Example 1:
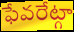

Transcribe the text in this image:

ఫేవరేట్గా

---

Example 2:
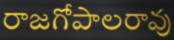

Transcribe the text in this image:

రాజగోపాలరావు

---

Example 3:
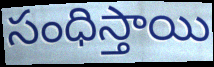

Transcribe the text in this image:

సంధిస్తాయి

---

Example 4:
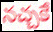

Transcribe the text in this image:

నచ్చకే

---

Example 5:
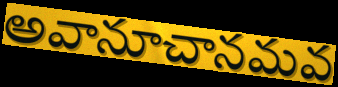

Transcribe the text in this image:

అవానూచానమవ